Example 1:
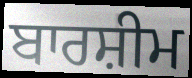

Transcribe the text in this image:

ਬਾਰਸ਼ੀਮ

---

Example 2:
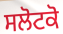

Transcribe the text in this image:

ਸਲੋਟਕੋ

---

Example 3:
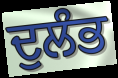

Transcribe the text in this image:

ਦੁਲੰਭ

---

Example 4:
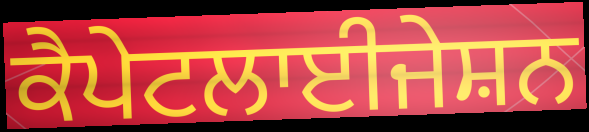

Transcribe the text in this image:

ਕੈਪੇਟਲਾਈਜੇਸ਼ਨ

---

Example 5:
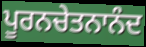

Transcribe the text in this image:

ਪੂਰਨਚੇਤਨਾਨੰਦ